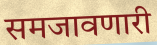
समजावणारी